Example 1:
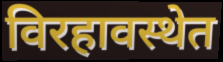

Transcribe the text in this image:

विरहावस्थेत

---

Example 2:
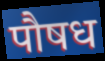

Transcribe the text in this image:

पौषध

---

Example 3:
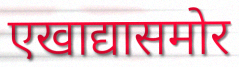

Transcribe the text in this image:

एखाद्यासमोर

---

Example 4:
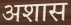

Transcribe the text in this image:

अशास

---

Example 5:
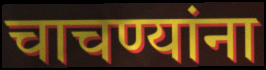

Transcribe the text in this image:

चाचण्यांना